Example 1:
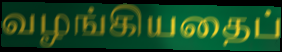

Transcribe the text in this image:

வழங்கியதைப்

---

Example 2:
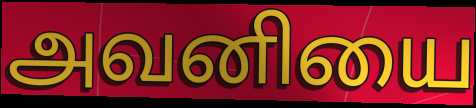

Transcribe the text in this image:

அவனியை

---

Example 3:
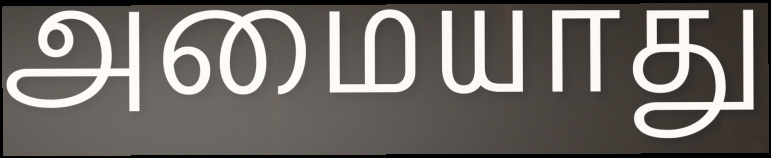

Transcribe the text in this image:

அமையாது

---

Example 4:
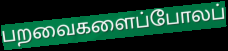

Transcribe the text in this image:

பறவைகளைப்போலப்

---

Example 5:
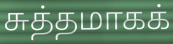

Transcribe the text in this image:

சுத்தமாகக்